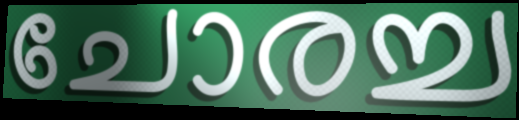
ചോരച്ച